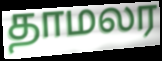
தாமலர